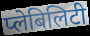
प्लेबिलिटी